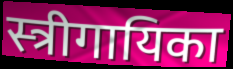
स्त्रीगायिका